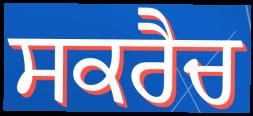
ਸਕਰੈਚ